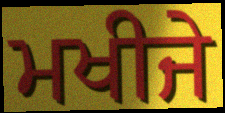
ਮਖੀਜੇ